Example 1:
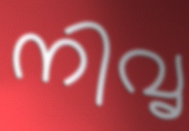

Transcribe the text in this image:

നിവൃ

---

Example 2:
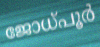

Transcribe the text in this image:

ജോധ്പൂർ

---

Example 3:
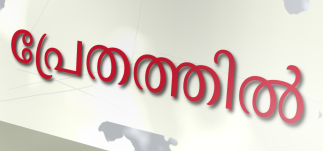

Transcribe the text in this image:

പ്രേതത്തിൽ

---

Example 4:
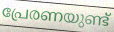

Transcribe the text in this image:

പ്രേരണയുണ്ട്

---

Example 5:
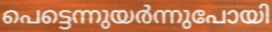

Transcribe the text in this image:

പെട്ടെന്നുയർന്നുപോയി